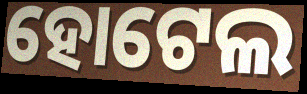
ହୋଟେଲ